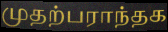
முதற்பராந்தக